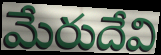
మేరుదేవి